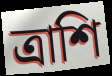
ত্রাশি